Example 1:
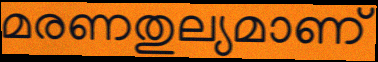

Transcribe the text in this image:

മരണതുല്യമാണ്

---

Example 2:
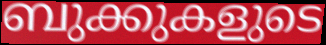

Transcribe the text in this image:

ബുക്കുകളുടെ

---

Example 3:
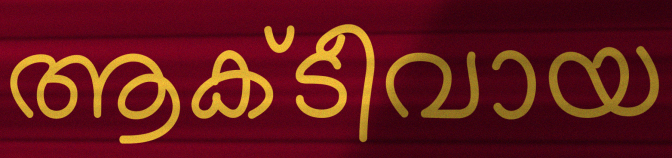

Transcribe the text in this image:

ആക്ടീവായ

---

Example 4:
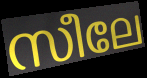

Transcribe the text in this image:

സീലേ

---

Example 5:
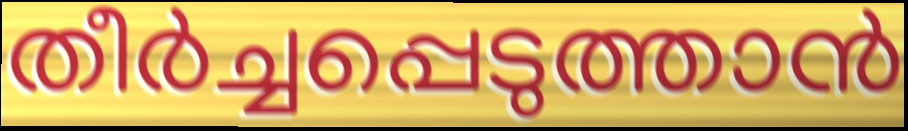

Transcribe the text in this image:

തീർച്ചപ്പെടുത്താൻ